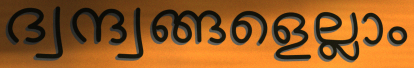
ദ്വന്ദ്വങ്ങളെല്ലാം